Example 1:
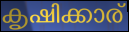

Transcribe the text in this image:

കൃഷിക്കാര്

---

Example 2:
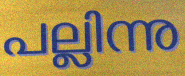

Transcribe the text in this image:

പല്ലിന്നു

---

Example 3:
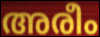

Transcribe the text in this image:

അരീം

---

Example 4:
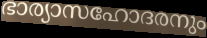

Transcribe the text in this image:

ഭാര്യാസഹോദരനും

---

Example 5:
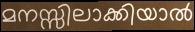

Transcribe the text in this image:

മനസ്സിലാക്കിയാൽ